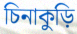
চিনাকুড়ি